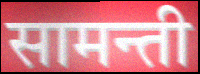
सामन्ती